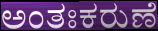
ಅಂತಃಕರುಣೆ